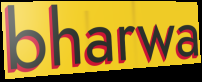
bharwa